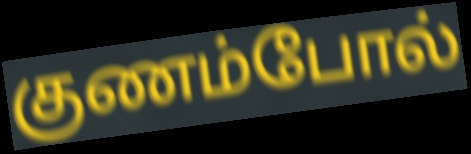
குணம்போல்